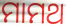
ମାମଥ